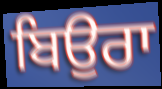
ਬਿਉਰਾ